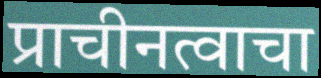
प्राचीनत्वाचा